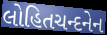
લોહિતચન્દનેન